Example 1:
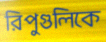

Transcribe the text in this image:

রিপুগুলিকে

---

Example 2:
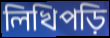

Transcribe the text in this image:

লিখিপড়ি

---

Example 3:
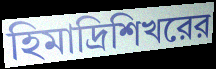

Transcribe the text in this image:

হিমাদ্রিশিখরের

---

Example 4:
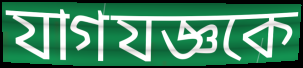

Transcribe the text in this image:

যাগযজ্ঞকে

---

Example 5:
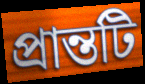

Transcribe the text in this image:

প্রান্তটি